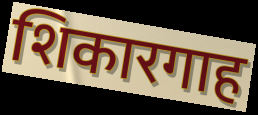
शिकारगाह